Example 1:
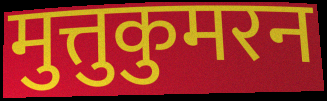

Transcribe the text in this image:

मुत्तुकुमरन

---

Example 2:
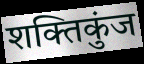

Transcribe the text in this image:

शक्तिकुंज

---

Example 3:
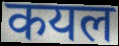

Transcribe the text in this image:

कयल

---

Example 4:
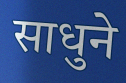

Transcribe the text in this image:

साधुने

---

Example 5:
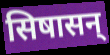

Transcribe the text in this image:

सिषासन्